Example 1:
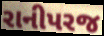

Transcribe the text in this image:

રાનીપરજ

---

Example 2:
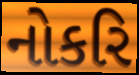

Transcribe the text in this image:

નોકરિ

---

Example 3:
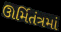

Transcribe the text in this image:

ઊર્મિતંત્રમાં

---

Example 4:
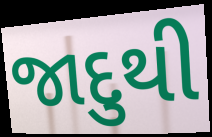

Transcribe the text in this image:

જાદુથી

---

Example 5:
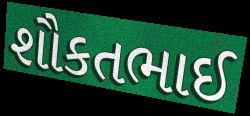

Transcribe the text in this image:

શૌકતભાઈ